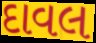
દાવલ